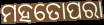
ମହତୋପରା